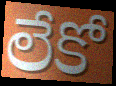
లేకో